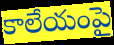
కాలేయంపై